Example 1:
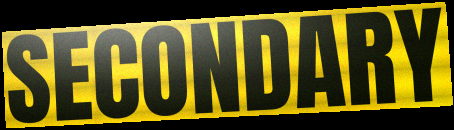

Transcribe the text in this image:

SECONDARY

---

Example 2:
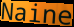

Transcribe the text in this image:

Naine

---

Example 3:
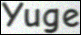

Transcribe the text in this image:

Yuge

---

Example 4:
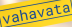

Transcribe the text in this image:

vahavata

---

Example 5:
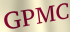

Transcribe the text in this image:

GPMC